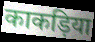
काकड़िया